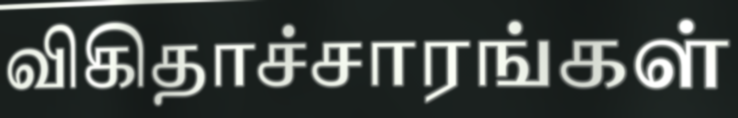
விகிதாச்சாரங்கள்